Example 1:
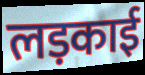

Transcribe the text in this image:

लड़काई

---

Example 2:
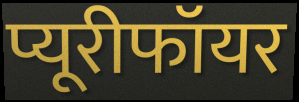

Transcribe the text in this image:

प्यूरीफॉयर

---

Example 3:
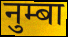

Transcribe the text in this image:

नुम्बा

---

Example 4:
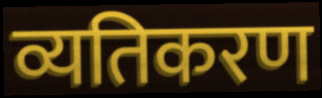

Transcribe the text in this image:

व्यतिकरण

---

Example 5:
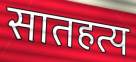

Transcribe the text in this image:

सातहत्य